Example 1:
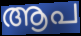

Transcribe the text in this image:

ആപ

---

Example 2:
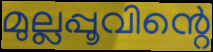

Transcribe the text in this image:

മുല്ലപ്പൂവിന്റെ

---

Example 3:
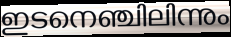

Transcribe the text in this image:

ഇടനെഞ്ചിലിന്നും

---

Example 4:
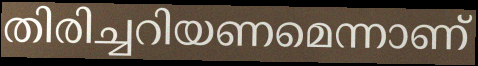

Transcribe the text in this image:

തിരിച്ചറിയണമെന്നാണ്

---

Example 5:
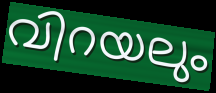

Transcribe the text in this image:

വിറയലും